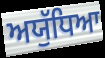
ਅਯੁੱਧਿਆ